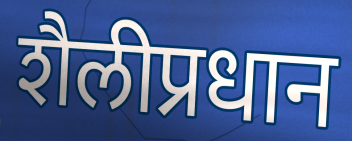
शैलीप्रधान